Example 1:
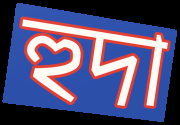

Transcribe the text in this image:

হুদা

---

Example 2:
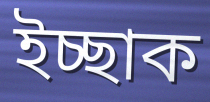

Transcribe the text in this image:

ইচ্ছাক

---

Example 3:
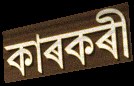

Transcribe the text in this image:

কাৰকৰী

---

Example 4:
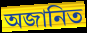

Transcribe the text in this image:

অজানিত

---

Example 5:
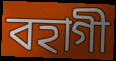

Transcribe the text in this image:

বহাগী